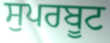
ਸੁਪਰਬੂਟ